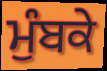
ਮੁੰਬਕੇ